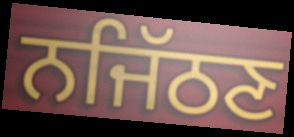
ਨਜਿੱਠਣ